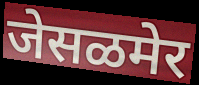
जेसळमेर